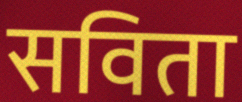
सविता